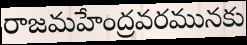
రాజమహేంద్రవరమునకు